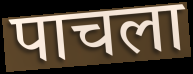
पाचला